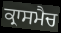
ਕ੍ਰਾਸਮੈਚ